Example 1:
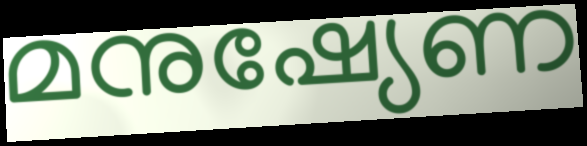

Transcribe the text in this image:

മനുഷ്യേണ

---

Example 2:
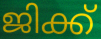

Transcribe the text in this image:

ജിക്ക്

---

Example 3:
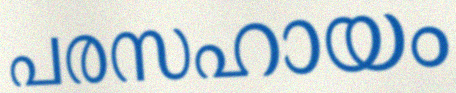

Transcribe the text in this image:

പരസഹായം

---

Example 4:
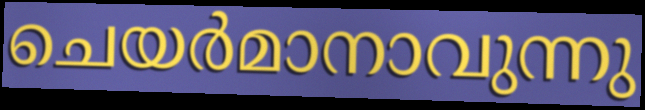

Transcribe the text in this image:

ചെയർമാനാവുന്നു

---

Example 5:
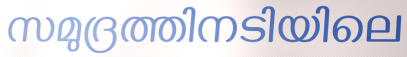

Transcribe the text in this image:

സമുദ്രത്തിനടിയിലെ